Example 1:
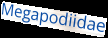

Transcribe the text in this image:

Megapodiidae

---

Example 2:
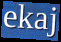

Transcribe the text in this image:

ekaj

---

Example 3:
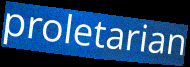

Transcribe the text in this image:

proletarian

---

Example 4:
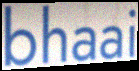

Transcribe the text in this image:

bhaai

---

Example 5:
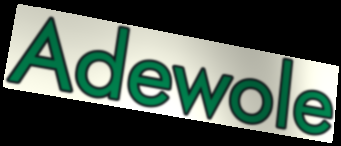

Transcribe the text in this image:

Adewole